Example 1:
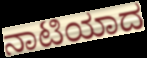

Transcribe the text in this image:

ನಾಟಿಯಾದ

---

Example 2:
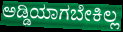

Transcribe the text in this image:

ಅಡ್ಡಿಯಾಗಬೇಕಿಲ್ಲ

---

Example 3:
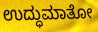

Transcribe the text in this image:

ಉದ್ಧುಮಾತೋ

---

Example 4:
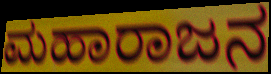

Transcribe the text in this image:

ಮಹಾರಾಜನ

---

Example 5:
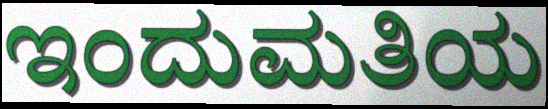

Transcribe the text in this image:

ಇಂದುಮತಿಯ